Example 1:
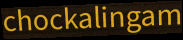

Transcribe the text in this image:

chockalingam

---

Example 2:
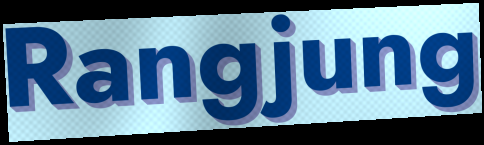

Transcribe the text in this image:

Rangjung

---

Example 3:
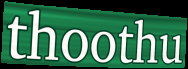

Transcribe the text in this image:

thoothu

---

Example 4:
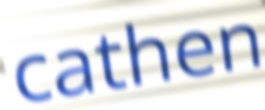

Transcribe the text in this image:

cathen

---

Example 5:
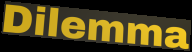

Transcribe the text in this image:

Dilemma